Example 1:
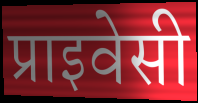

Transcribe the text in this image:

प्राइवेसी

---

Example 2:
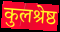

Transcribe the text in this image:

कुलश्रेष्ठ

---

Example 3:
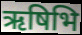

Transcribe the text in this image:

ऋषिभि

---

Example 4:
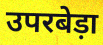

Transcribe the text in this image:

उपरबेड़ा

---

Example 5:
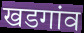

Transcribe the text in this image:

खडगांव